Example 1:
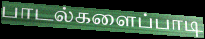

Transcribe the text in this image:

பாடல்களைப்பாடி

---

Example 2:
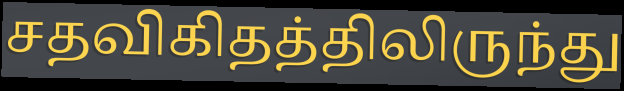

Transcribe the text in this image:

சதவிகிதத்திலிருந்து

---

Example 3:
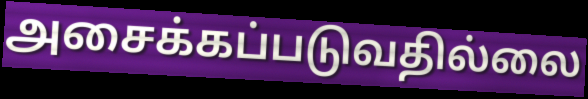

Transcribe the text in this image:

அசைக்கப்படுவதில்லை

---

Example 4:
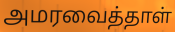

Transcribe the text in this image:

அமரவைத்தாள்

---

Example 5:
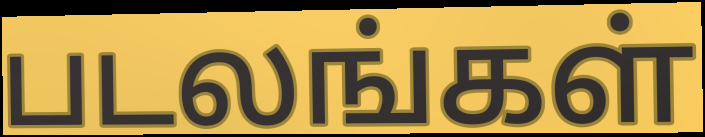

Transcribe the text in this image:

படலங்கள்